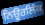
ਨਿਊਰਲਿੰਕ